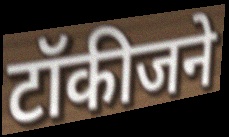
टॉकीजने